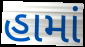
હામાં